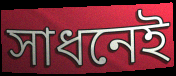
সাধনেই